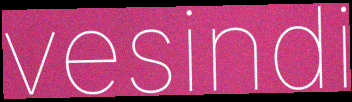
vesindi